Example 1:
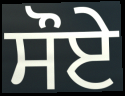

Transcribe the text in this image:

ਸੌਏ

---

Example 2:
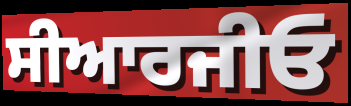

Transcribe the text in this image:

ਸੀਆਰਜੀਓ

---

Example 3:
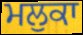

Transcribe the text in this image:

ਮਲੁਕਾ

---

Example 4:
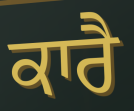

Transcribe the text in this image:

ਕਾਰੈ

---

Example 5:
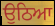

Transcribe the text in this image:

ਉਠਿਆ